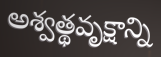
అశ్వత్థవృక్షాన్ని